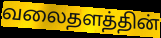
வலைதளத்தின்